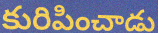
కురిపించాడు